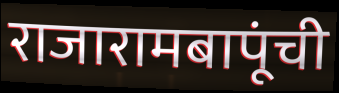
राजारामबापूंची